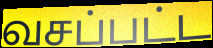
வசப்பட்ட